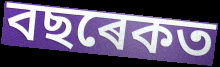
বছৰেকত